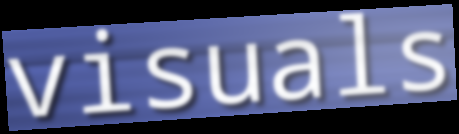
visuals